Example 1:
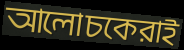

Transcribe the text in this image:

আলোচকেরাই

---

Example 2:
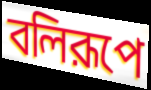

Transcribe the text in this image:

বলিরূপে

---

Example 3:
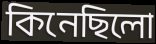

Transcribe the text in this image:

কিনেছিলো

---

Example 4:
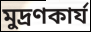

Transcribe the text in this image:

মুদ্রণকার্য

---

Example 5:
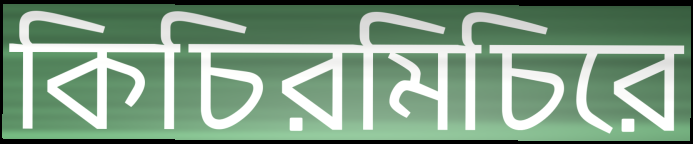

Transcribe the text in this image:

কিচিরমিচিরে